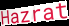
Hazrat